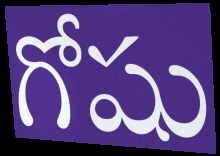
గోషు